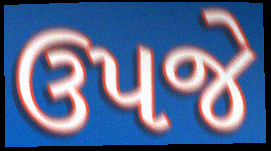
ઉપજે